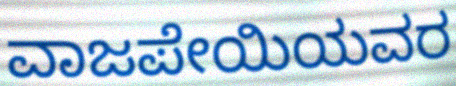
ವಾಜಪೇಯಿಯವರ